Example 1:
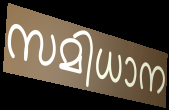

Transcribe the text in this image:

സമിധാന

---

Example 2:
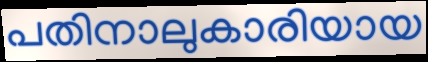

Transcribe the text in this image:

പതിനാലുകാരിയായ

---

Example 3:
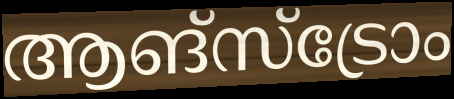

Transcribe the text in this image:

ആങ്സ്ട്രോം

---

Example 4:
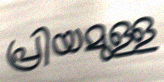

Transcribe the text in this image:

പ്രിയമുള്ള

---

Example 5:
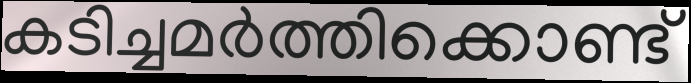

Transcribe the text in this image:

കടിച്ചമർത്തിക്കൊണ്ട്